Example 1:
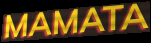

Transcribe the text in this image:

MAMATA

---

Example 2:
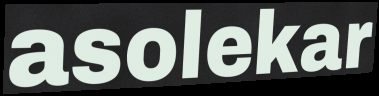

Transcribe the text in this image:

asolekar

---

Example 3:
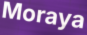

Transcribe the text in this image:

Moraya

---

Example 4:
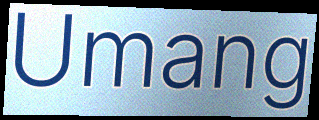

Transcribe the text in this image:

Umang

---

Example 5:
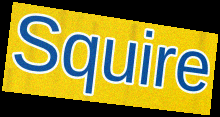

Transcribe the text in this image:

Squire